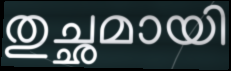
തുച്ഛമായി